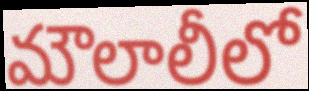
మౌలాలీలో